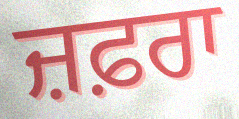
ਜ਼ਫ਼ਰਾ